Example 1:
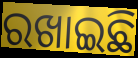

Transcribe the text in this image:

ରଖାଇଛି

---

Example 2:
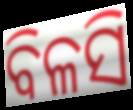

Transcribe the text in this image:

ବିଳସି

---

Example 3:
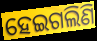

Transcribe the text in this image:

ହେଇଗଲିଣି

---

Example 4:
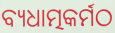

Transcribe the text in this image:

ବ୍ୟଧାତ୍ମକର୍ମଠ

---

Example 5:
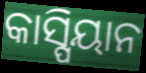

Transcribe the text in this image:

କାସ୍ପିୟାନ